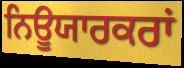
ਨਿਊਯਾਰਕਰਾਂ